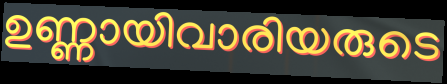
ഉണ്ണായിവാരിയരുടെ